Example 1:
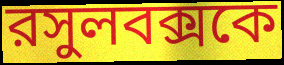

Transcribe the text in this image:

রসুলবক্সকে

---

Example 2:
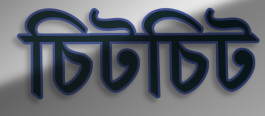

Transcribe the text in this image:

চিটচিট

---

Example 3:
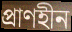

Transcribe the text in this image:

প্রাণহীন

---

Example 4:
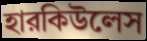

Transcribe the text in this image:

হারকিউলেস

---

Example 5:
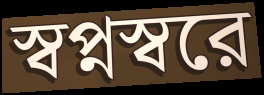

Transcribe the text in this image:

স্বপ্নস্বরে